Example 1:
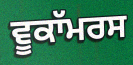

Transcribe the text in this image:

ਵੂਕਾੱਮਰਸ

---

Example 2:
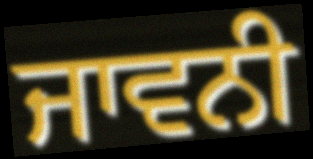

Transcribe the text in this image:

ਜਾਵਨੀ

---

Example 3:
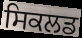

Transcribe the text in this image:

ਸਿਕਲਡ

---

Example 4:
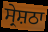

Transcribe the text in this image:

ਸ੍ਰੇਸ਼ਠਾ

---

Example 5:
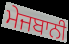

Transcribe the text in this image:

ਮੇਜਬਾਨੀ